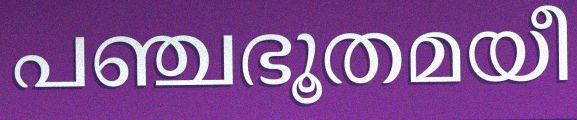
പഞ്ചഭൂതമയീ